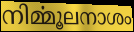
നിൎമ്മൂലനാശം